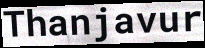
Thanjavur